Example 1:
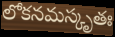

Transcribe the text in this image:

లోకనమస్కృతః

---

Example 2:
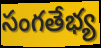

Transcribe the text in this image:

సంగతేభ్య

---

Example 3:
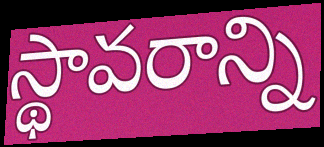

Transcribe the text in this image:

స్థావరాన్ని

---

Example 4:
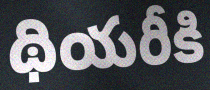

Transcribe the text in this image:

థియరీకి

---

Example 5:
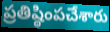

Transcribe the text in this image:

ప్రతిష్ఠింపచేశారు